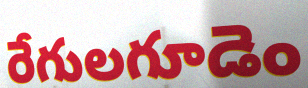
రేగులగూడెం